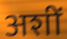
अशीं